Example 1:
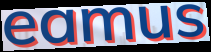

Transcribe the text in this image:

eamus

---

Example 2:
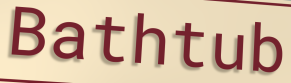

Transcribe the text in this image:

Bathtub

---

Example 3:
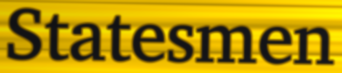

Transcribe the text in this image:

Statesmen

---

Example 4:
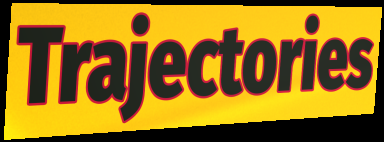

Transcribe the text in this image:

Trajectories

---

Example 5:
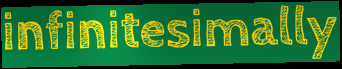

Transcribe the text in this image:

infinitesimally